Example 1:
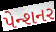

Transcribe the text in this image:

પેન્શનર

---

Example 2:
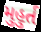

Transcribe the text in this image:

મુહુર્ત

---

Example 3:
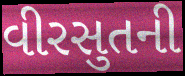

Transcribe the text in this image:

વીરસુતની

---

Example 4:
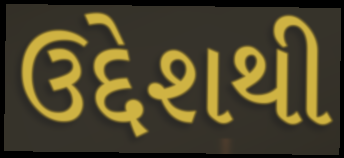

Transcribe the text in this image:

ઉદ્દેશથી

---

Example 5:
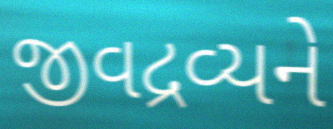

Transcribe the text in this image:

જીવદ્રવ્યને